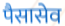
पैसासेव